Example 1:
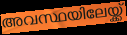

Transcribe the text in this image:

അവസ്ഥയിലേയ്ക്ക്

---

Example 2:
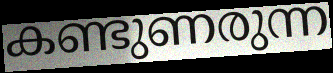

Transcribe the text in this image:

കണ്ടുണരുന്ന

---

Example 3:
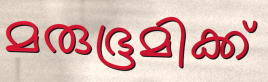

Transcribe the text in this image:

മരുഭൂമിക്ക്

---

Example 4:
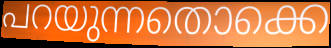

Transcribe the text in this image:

പറയുന്നതൊക്കെ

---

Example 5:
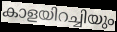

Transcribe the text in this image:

കാളയിറച്ചിയും